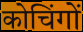
कोचिंगों